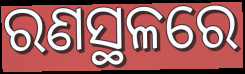
ରଣସ୍ଥଳରେ